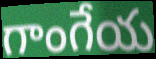
గాంగేయ